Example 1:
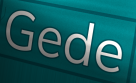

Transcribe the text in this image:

Gede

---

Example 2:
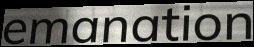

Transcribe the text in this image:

emanation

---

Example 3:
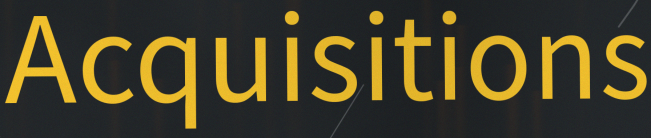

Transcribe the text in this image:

Acquisitions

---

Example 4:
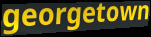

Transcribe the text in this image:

georgetown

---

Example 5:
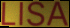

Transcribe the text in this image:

LISA